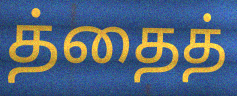
த்தைத்